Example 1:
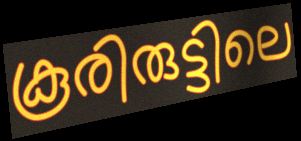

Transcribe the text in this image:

കൂരിരുട്ടിലെ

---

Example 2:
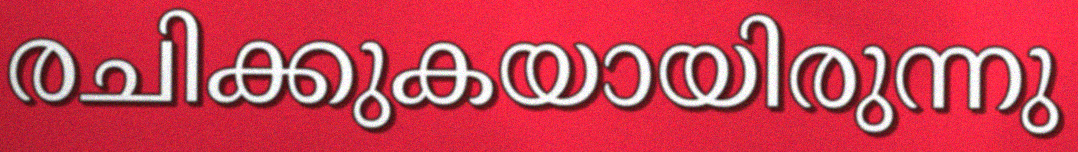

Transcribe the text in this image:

രചിക്കുകയായിരുന്നു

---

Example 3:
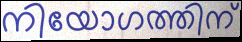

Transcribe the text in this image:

നിയോഗത്തിന്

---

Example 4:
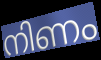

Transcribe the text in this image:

നിണം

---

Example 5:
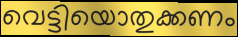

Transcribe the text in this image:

വെട്ടിയൊതുക്കണം